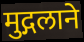
मुद्गलाने